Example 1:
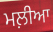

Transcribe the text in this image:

ਮਲ਼ੀਆ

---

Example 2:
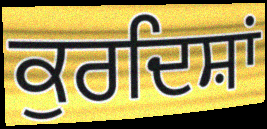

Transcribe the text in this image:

ਕੁਰਦਿਸ਼ਾਂ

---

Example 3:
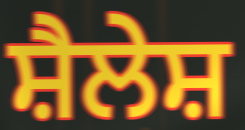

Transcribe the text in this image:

ਸ਼ੈਲੇਸ਼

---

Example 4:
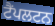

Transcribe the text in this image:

ਟੈਂਪਲਟਨ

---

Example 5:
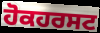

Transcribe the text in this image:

ਹੋਕਹਰਸਟ